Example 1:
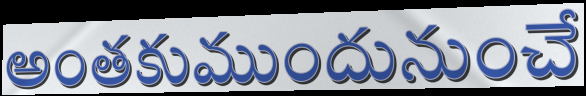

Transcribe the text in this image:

అంతకుముందునుంచే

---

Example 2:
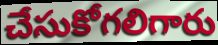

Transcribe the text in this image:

చేసుకోగలిగారు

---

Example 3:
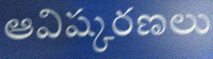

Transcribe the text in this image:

ఆవిష్కరణలు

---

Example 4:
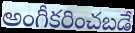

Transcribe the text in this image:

అంగీకరించబడే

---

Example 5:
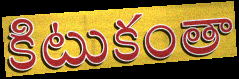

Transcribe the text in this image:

కిటుకంతా